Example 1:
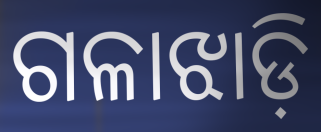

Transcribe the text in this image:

ଗଳାଝାଡ଼ି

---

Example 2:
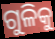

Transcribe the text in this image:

ଗୁଳିକୁ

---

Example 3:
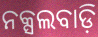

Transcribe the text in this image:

ନକ୍ସଲବାଡ଼ି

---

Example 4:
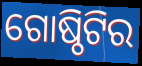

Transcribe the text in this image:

ଗୋଷ୍ଠିଟିର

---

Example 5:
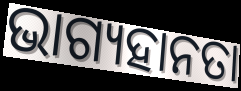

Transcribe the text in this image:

ଭାଗ୍ୟହାନତା